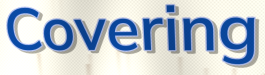
Covering